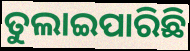
ତୁଲାଇପାରିଛି